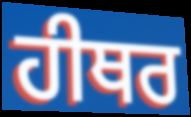
ਹੀਥਰ